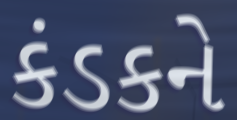
કંડકને